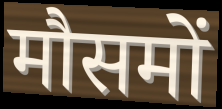
मौसमों